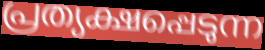
പ്രത്യക്ഷപ്പെടുന്ന